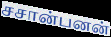
சசான்பனன்